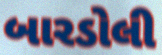
બારડોલી